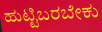
ಹುಟ್ಟಿಬರಬೇಕು